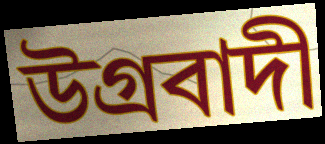
উগ্রবাদী